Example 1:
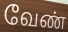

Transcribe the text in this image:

வேண்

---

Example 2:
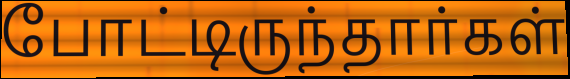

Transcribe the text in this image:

போட்டிருந்தார்கள்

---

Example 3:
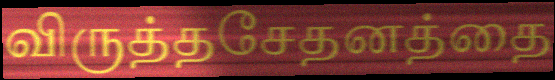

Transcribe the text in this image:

விருத்தசேதனத்தை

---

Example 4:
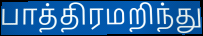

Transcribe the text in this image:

பாத்திரமறிந்து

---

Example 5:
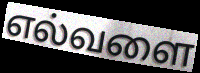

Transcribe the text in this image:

எல்வளை